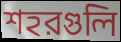
শহরগুলি